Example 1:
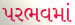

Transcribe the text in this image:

પરભવમાં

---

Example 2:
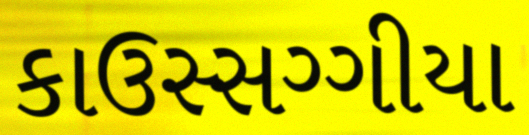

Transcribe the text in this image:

કાઉસ્સગ્ગીયા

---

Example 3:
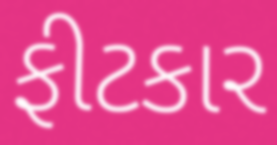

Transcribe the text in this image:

ફીટકાર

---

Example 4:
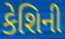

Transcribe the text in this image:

કેશિની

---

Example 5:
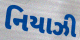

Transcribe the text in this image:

નિયાઝી